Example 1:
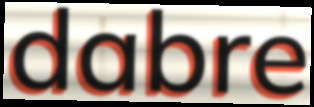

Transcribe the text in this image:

dabre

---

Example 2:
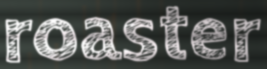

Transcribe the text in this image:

roaster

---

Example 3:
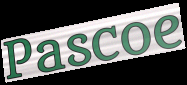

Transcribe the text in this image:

Pascoe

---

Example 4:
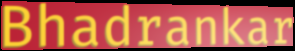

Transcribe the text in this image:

Bhadrankar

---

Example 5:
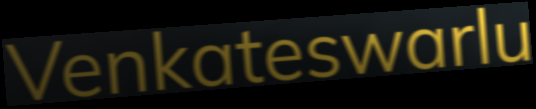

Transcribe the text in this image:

Venkateswarlu